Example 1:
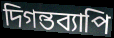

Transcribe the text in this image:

দিগন্তব্যাপি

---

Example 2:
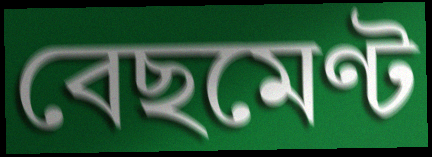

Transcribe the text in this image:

বেছমেণ্ট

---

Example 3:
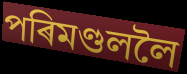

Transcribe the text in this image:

পৰিমণ্ডললৈ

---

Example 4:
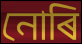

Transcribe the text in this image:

নোৰি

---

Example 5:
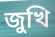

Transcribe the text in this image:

জুখি